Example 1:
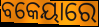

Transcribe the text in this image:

ବକେୟାରେ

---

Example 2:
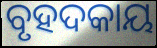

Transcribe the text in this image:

ବୃହଦକାୟ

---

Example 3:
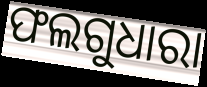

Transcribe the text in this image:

ଫଲଗୁଧାରା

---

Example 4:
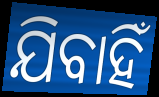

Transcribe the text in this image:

ଯିବାହିଁ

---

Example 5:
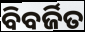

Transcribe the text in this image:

ବିବର୍ଜିତ